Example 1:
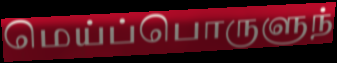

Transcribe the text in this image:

மெய்ப்பொருளுந்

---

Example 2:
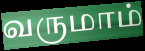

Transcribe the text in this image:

வருமாம்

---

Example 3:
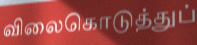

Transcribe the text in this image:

விலைகொடுத்துப்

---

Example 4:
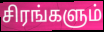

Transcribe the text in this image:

சிரங்களும்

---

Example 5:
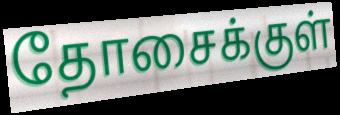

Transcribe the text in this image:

தோசைக்குள்